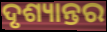
ଦୃଶ୍ୟାନ୍ତର